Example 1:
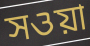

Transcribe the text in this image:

সওয়া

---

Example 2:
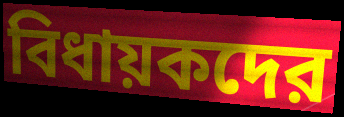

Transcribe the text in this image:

বিধায়কদের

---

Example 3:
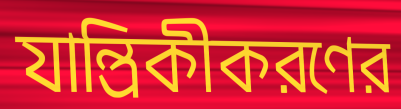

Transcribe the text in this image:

যান্ত্রিকীকরণের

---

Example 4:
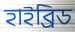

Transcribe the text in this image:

হাইব্রিড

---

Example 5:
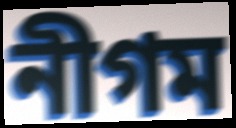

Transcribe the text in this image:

নীগম